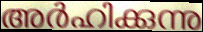
അർഹിക്കുന്നു